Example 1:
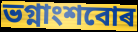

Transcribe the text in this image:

ভগ্নাংশবোৰ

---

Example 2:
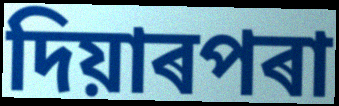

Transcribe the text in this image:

দিয়াৰপৰা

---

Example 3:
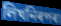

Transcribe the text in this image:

লিখনিৰপৰা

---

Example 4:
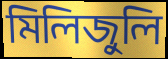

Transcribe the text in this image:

মিলিজুলি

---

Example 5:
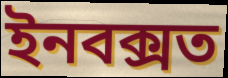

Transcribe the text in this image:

ইনবক্সত